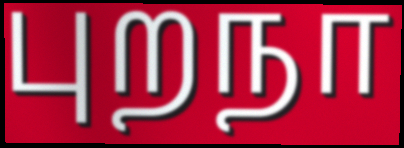
புறநா